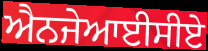
ਐਨਜੇਆਈਸੀਏ